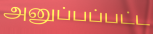
அனுப்பப்பட்ட